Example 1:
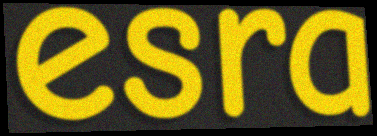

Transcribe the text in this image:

esra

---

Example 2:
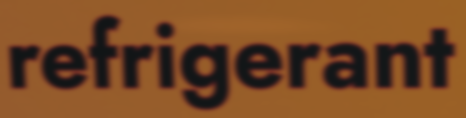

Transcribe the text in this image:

refrigerant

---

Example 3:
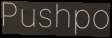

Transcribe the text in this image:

Pushpo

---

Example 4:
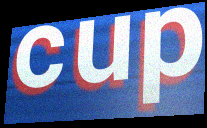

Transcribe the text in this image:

cup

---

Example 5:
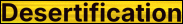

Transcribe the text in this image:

Desertification